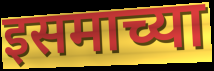
इसमाच्या